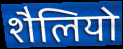
शैलियो